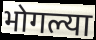
भोगल्या